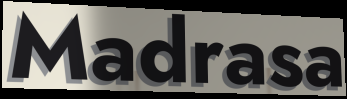
Madrasa